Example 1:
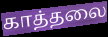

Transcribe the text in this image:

காத்தலை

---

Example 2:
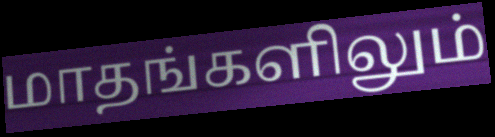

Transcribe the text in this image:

மாதங்களிலும்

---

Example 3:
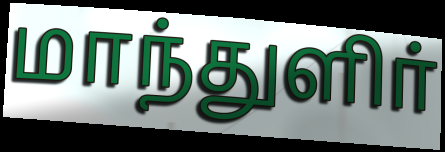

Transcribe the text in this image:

மாந்துளிர்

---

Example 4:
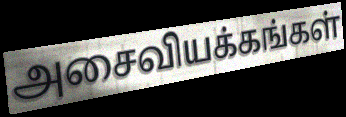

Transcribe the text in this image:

அசைவியக்கங்கள்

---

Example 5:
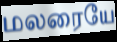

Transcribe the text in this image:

மலரையே